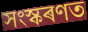
সংস্কৰণত